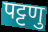
पट्टणु